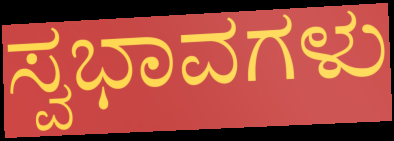
ಸ್ವಭಾವಗಳು